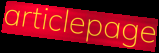
articlepage